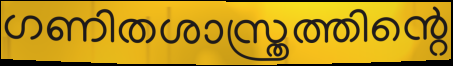
ഗണിതശാസ്ത്രത്തിന്റെ